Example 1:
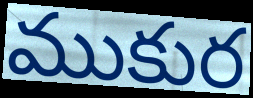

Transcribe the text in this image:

ముకుర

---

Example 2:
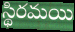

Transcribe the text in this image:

స్థిరమయి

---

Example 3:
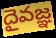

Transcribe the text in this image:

దైవజ్ఞ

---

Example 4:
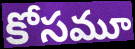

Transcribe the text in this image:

కోసమూ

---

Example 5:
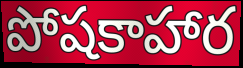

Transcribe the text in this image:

పోషకాహార